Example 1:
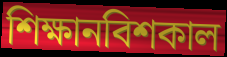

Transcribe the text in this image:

শিক্ষানবিশকাল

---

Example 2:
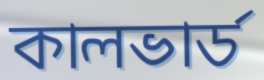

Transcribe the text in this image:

কালভার্ড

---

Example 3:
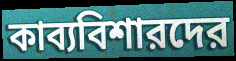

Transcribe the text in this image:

কাব্যবিশারদের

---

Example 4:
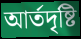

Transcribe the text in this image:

আর্তদৃষ্টি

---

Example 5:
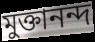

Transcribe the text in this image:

মুক্তানন্দ